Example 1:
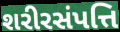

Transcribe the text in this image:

શરીરસંપત્તિ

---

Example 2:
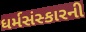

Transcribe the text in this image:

ધર્મસંસ્કારની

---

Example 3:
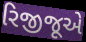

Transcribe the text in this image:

રિજીજૂએ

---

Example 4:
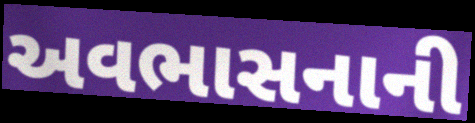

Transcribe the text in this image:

અવભાસનાની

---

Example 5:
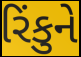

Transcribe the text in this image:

રિંકુને